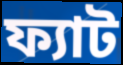
ফ্যাট